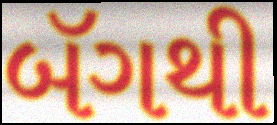
બૅગથી